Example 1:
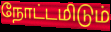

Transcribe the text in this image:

நோட்டமிடும்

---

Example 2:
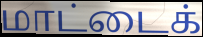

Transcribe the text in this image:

மாட்டைக்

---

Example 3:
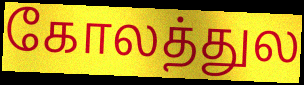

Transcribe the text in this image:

கோலத்துல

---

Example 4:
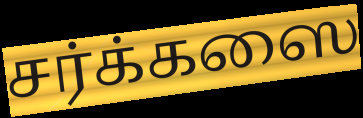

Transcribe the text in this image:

சர்க்கஸை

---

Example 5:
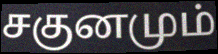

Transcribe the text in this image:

சகுனமும்